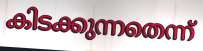
കിടക്കുന്നതെന്ന്